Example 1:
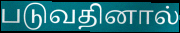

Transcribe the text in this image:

படுவதினால்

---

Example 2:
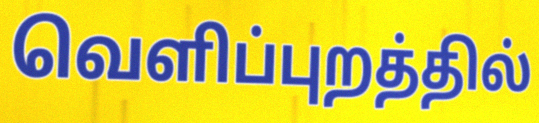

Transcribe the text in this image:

வெளிப்புறத்தில்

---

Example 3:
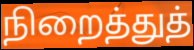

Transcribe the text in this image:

நிறைத்துத்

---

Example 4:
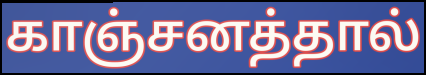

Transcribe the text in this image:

காஞ்சனத்தால்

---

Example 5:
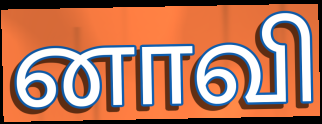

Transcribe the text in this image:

னாவி